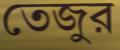
তেজুর